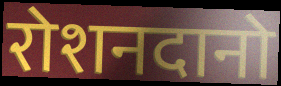
रोशनदानो